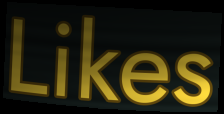
Likes